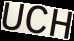
UCH